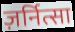
ज़र्नित्सा